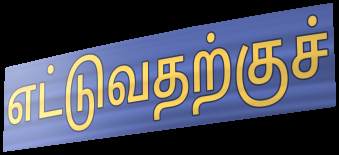
எட்டுவதற்குச்